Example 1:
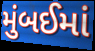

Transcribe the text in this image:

મુંબઈમાં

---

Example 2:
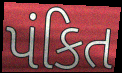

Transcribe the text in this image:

પંકિત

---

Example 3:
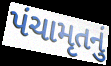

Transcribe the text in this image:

પંચામૃતનું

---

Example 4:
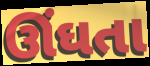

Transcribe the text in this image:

ઊંઘતા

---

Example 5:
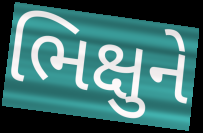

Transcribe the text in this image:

ભિક્ષુને